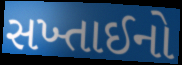
સખ્તાઈનો